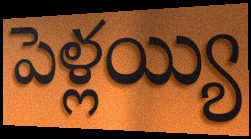
పెళ్లయ్యి